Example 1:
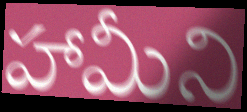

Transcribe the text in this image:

హామీని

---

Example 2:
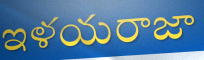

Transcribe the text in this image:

ఇళయరాజా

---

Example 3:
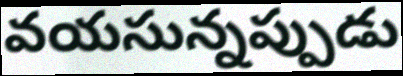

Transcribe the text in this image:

వయసున్నప్పుడు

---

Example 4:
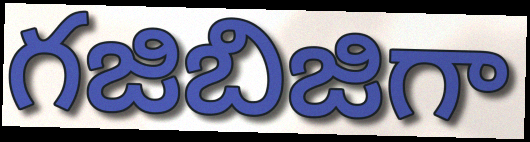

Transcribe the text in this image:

గజిబిజిగా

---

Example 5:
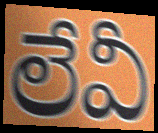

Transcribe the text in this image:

లేవీ